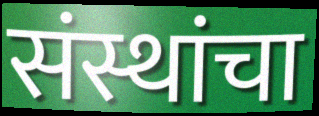
संस्थांचा